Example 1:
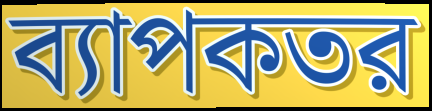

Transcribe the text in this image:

ব্যাপকতর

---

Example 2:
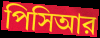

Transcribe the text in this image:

পিসিআর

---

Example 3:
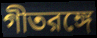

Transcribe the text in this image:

গীতরঙ্গে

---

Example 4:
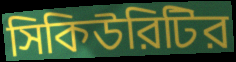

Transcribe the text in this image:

সিকিউরিটির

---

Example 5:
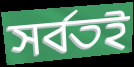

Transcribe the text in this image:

সর্বতই